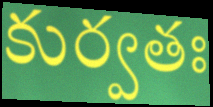
కుర్వతః